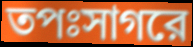
তপঃসাগরে